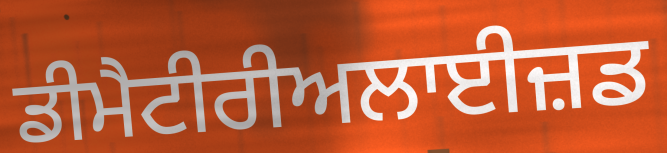
ਡੀਮੈਟੀਰੀਅਲਾਈਜ਼ਡ